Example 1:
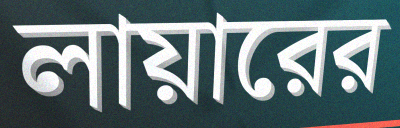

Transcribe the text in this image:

লায়ারের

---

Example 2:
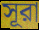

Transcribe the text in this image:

সূরা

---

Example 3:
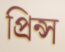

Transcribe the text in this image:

প্রিন্স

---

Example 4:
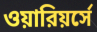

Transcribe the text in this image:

ওয়ারিয়র্সে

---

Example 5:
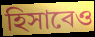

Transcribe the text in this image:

হিসাবেও